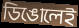
ডিঙোলেই